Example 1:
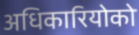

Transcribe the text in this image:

अधिकारियोको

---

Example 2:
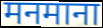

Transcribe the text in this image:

मनमाना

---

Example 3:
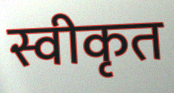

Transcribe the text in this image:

स्‍वीकृत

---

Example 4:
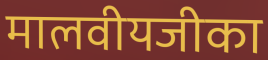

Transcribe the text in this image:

मालवीयजीका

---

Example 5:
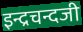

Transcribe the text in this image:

इन्द्रचन्दजी